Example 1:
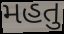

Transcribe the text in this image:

મહતુ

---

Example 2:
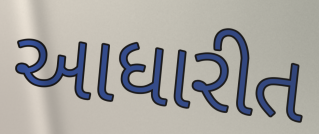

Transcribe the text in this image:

આધારીત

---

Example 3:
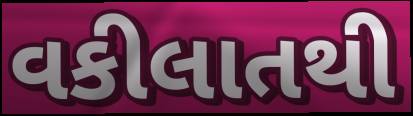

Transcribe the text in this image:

વકીલાતથી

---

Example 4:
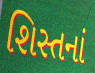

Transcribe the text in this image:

શિસ્તનાં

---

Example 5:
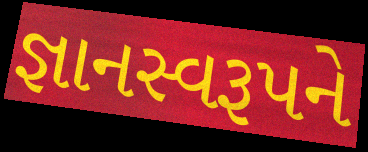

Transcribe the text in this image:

જ્ઞાનસ્વરૂપને